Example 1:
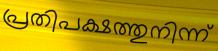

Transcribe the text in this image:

പ്രതിപക്ഷത്തുനിന്ന്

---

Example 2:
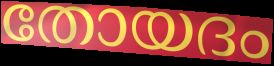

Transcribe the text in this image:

തോയദം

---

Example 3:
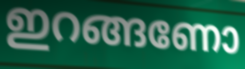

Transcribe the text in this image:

ഇറങ്ങണോ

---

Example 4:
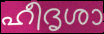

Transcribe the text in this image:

ഹീദൃശാ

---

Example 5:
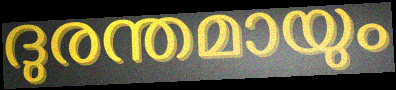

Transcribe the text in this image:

ദുരന്തമായും